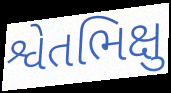
શ્વેતભિક્ષુ